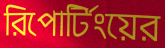
রিপোর্টিংয়ের